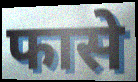
फासे